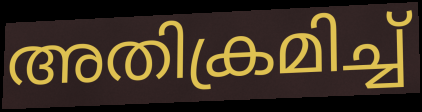
അതിക്രമിച്ച്